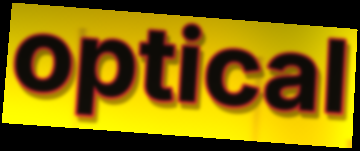
optical